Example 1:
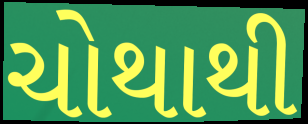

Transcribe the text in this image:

ચોથાથી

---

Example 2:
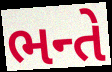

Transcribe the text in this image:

ભન્તે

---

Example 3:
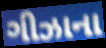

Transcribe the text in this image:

ગીઝાના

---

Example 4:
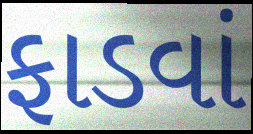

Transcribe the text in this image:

ફાડવાં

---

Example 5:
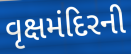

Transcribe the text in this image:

વૃક્ષમંદિરની